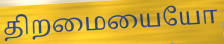
திறமையையோ